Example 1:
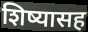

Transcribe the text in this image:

शिष्यासह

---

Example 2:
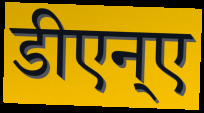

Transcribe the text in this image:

डीएन्ए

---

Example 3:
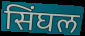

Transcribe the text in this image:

सिंघल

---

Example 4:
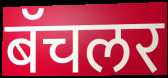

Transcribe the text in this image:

बॅचलर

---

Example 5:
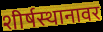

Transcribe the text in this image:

शीर्षस्थानावर